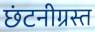
छंटनीग्रस्त